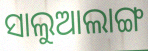
ସାଲୁଆଲାଙ୍ଗ